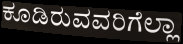
ಕೂಡಿರುವವರಿಗೆಲ್ಲಾ